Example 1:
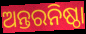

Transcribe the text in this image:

ଅନ୍ତରନିଷ୍ଠା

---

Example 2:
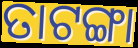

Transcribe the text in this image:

ତାଟଙ୍ଗା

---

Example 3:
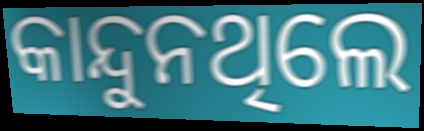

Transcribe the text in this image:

କାନ୍ଦୁନଥିଲେ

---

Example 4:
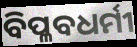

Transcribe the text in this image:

ବିପ୍ଳବଧର୍ମୀ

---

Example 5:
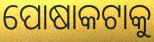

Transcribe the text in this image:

ପୋଷାକଟାକୁ